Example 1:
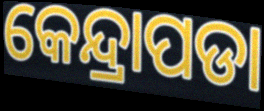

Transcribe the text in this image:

କେନ୍ଦ୍ରାପଡା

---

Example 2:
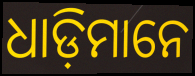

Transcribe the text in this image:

ଧାଡ଼ିମାନେ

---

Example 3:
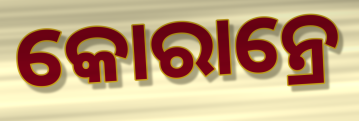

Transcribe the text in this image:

କୋରାନ୍ରେ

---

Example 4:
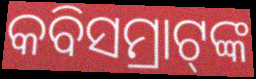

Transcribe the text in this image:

କବିସମ୍ରାଟ୍‌ଙ୍କ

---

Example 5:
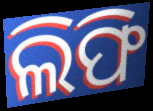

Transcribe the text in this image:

ଲିଫି